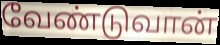
வேண்டுவான்